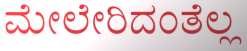
ಮೇಲೇರಿದಂತೆಲ್ಲ